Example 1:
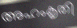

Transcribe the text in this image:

അഹംകൃതി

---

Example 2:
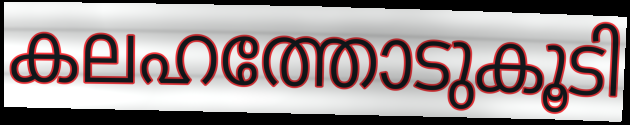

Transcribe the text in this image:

കലഹത്തോടുകൂടി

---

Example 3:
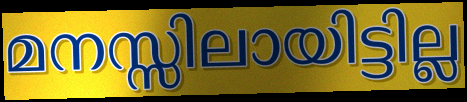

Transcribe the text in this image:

മനസ്സിലായിട്ടില്ല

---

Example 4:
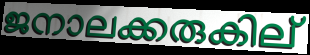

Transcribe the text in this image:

ജനാലക്കരുകില്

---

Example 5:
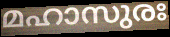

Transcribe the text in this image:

മഹാസുരഃ